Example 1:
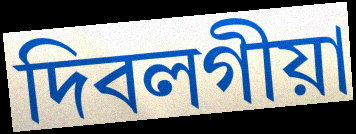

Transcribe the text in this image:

দিবলগীয়া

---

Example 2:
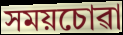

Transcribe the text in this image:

সময়চোৱা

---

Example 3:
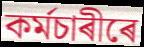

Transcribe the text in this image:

কৰ্মচাৰীৰে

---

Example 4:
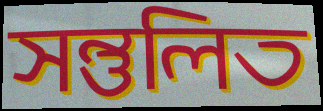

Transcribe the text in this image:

সন্তুলিত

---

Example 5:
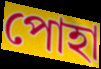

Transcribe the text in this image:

পোহা